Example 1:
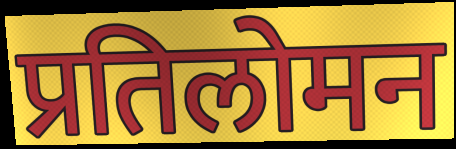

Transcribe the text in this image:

प्रतिलोमन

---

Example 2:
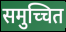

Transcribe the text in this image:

समुच्चित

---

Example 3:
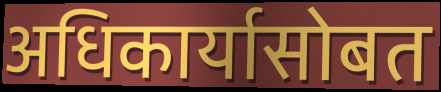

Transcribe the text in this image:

अधिकार्यासोबत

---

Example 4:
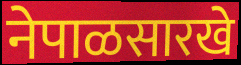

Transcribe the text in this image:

नेपाळसारखे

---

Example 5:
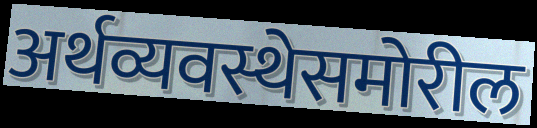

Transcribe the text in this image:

अर्थव्यवस्थेसमोरील